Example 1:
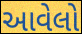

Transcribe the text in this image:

આવેલો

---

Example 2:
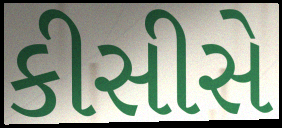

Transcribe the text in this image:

કીસીસે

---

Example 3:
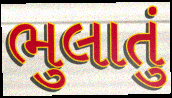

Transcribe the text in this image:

ભુલાતું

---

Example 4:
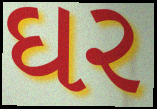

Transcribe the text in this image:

ઘર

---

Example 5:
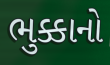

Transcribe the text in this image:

ભુક્કાનો